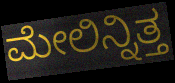
ಮೇಲಿನ್ನಿತ್ತ